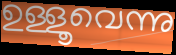
ഉള്ളൂവെന്നു